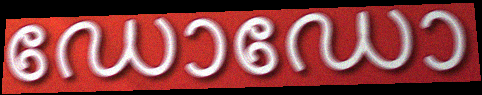
ഡോഡോ